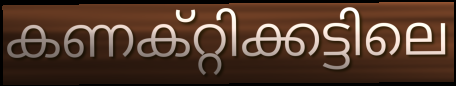
കണക്റ്റിക്കട്ടിലെ